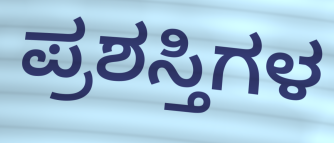
ಪ್ರಶಸ್ತಿಗಳ